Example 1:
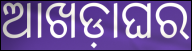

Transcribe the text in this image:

ଆଖଡ଼ାଘର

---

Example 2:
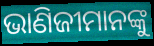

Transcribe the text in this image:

ଭାଣିଜୀମାନଙ୍କୁ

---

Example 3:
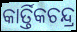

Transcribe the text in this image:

କାର୍ତ୍ତିକଚନ୍ଦ୍ର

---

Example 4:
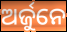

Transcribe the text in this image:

ଅର୍ଜୁନେ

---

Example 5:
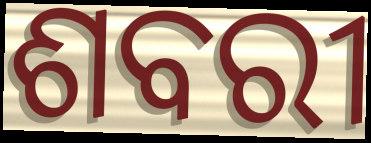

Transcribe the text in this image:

ଶବରୀ